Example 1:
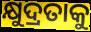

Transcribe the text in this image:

କ୍ଷୁଦ୍ରତାକୁ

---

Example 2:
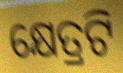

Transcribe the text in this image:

କ୍ଷେତ୍ରଟି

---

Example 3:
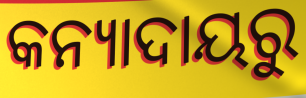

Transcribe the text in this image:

କନ୍ୟାଦାୟରୁ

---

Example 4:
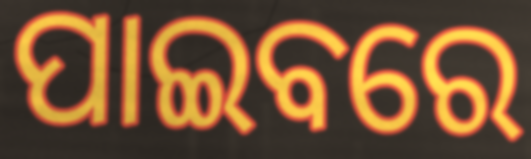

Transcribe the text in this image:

ପାଇବରେ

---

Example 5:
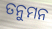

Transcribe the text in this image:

ତନୁମନ